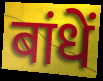
बांधें